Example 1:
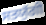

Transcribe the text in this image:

ਸਤਯੁੱਗੀ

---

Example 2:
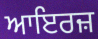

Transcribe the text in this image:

ਆਇਰਜ਼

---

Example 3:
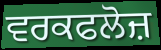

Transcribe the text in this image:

ਵਰਕਫਲੋਜ਼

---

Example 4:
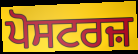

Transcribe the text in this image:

ਪੋਸਟਰਜ਼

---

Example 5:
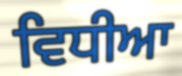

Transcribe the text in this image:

ਵਿਧੀਆ